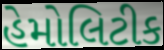
હેમોલિટીક